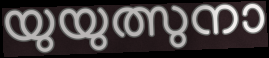
യുയുത്സുനാ